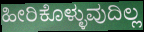
ಹೀರಿಕೊಳ್ಳುವುದಿಲ್ಲ